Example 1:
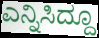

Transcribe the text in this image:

ಎನ್ನಿಸಿದ್ದೂ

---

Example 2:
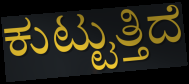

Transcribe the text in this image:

ಕುಟ್ಟುತ್ತಿದೆ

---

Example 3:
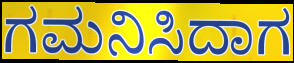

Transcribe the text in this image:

ಗಮನಿಸಿದಾಗ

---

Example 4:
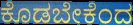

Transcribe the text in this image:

ಕೊಡಬೇಕೆಂದ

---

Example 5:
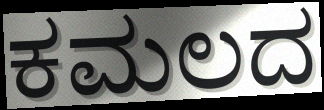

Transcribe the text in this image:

ಕಮಲದ